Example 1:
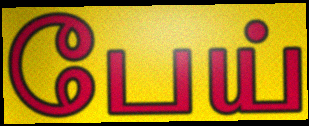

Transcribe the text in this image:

பேய்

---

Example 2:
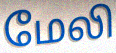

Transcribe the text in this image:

மேலி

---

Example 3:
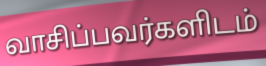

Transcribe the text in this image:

வாசிப்பவர்களிடம்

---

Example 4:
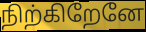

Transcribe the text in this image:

நிற்கிறேனே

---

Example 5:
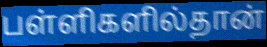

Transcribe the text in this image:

பள்ளிகளில்தான்